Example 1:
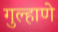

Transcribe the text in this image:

गुल्हाणे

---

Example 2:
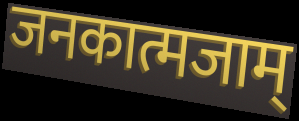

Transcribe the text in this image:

जनकात्मजाम्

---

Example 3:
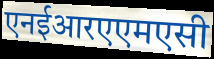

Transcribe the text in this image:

एनईआरएएमएसी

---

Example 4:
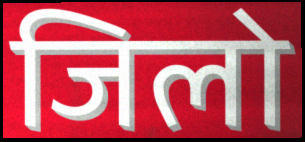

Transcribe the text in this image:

जिलो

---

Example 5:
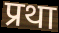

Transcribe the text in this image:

प्रथा